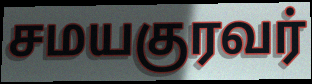
சமயகுரவர்